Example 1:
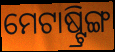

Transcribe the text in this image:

ମେଟାଷ୍ଟ୍ରିଙ୍ଗ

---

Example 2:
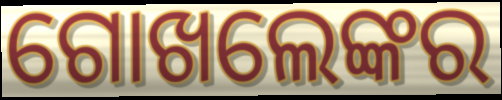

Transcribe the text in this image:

ଗୋଖଲେଙ୍କର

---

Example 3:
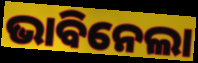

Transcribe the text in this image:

ଭାବିନେଲା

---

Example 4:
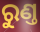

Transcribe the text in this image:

ରୁଣ୍ତ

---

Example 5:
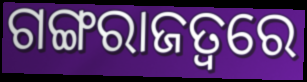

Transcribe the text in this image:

ଗଙ୍ଗରାଜତ୍ୱରେ